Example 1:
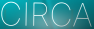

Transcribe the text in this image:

CIRCA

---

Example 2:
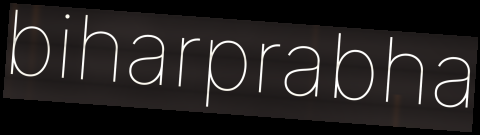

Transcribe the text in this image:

biharprabha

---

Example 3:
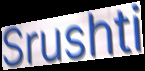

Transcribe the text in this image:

Srushti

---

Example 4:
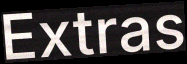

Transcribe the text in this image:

Extras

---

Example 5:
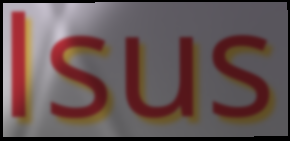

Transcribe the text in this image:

Isus